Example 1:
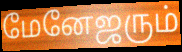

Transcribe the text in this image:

மேனேஜரும்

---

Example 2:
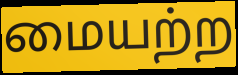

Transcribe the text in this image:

மையற்ற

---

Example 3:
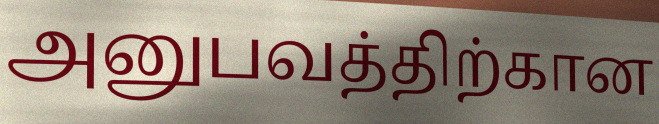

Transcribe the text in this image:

அனுபவத்திற்கான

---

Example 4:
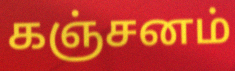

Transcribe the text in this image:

கஞ்சனம்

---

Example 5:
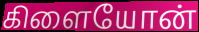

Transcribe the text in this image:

கிளையோன்